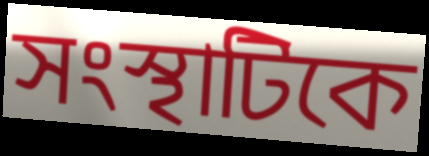
সংস্থাটিকে